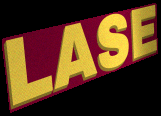
LASE